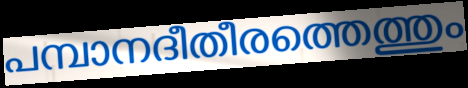
പമ്പാനദീതീരത്തെത്തും